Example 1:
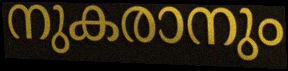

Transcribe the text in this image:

നുകരാനും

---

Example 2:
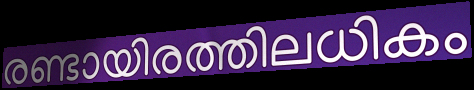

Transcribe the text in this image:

രണ്ടായിരത്തിലധികം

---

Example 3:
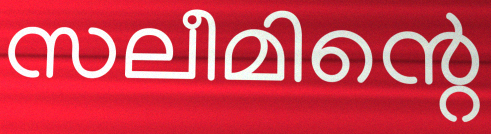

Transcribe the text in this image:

സലീമിന്റെ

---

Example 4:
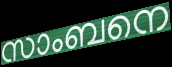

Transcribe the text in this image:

സാംബനെ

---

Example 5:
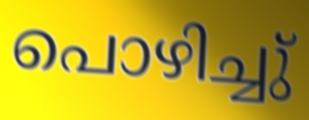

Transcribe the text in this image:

പൊഴിച്ചു്